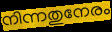
നിന്നതുനേരം